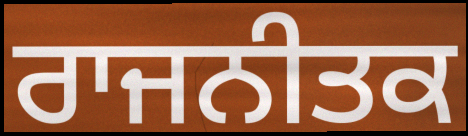
ਰਾਜਨੀਤਕ